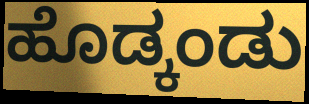
ಹೊಡ್ಕಂಡು